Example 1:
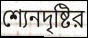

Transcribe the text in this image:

শ্যেনদৃষ্টির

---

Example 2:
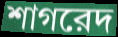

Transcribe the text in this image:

শাগরেদ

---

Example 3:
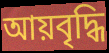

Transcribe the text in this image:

আয়বৃদ্ধি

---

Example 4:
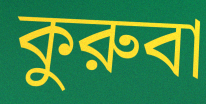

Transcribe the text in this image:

কুরুবা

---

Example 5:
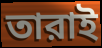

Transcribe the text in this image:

তারাই